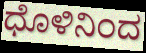
ಧೊಳಿನಿಂದ